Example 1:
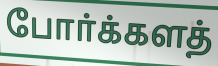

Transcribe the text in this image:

போர்க்களத்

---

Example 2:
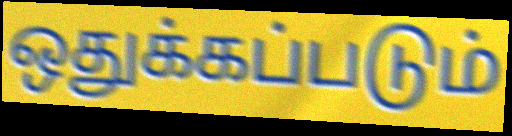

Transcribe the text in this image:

ஒதுக்கப்படும்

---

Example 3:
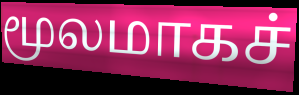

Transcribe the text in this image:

மூலமாகச்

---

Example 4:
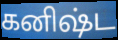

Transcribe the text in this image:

கனிஷ்ட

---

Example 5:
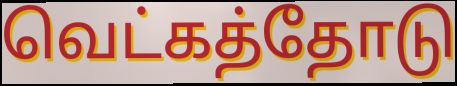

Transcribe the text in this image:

வெட்கத்தோடு